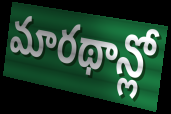
మారథాన్లో